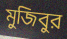
মুজিবুর